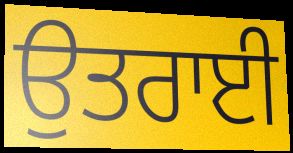
ਉਤਰਾਈ